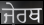
ਜੇਰਥ